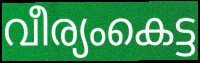
വീര്യംകെട്ട